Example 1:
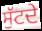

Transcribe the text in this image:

ਸੁੱਟਦੇ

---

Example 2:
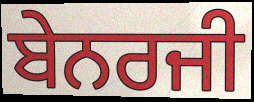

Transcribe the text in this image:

ਬੇਨਰਜੀ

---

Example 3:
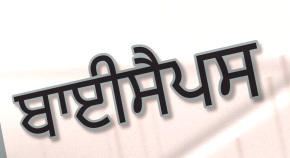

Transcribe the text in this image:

ਬਾਈਸੈਪਸ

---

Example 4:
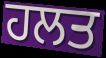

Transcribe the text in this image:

ਹਲਤ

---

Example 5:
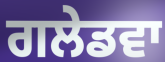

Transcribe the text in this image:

ਗਲੇਡਵਾ